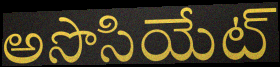
అసొసియేట్